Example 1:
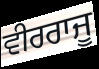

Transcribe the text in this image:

ਵੀਰਰਾਜੂ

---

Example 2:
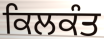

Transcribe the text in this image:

ਕਿਲਕੰਤ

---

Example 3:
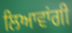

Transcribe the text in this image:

ਲਿਆਵਾਂਗੀ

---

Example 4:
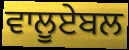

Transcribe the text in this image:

ਵਾਲੂਏਬਲ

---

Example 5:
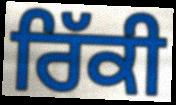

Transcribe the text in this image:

ਰਿੱਕੀ